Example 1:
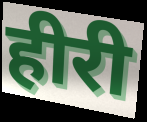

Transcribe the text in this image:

हीरी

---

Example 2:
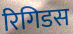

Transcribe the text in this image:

रिगिडस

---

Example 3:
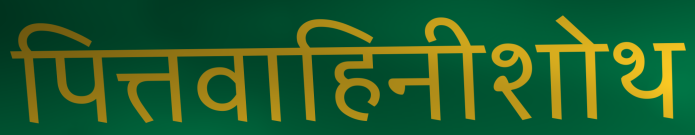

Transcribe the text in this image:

पित्तवाहिनीशोथ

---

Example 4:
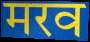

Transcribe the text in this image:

मरव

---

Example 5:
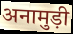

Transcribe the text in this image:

अनामुड़ी